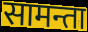
सामन्ता